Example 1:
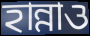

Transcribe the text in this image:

হান্নাও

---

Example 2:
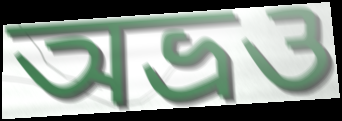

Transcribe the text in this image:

অভ্রও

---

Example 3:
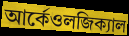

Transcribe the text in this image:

আর্কেওলজিক্যাল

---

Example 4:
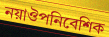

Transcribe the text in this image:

নয়াঔপনিবেশিক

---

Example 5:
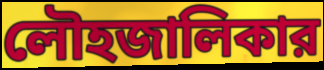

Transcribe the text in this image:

লৌহজালিকার